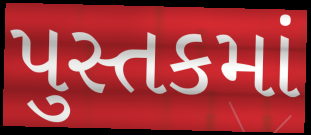
પુસ્તકમાં